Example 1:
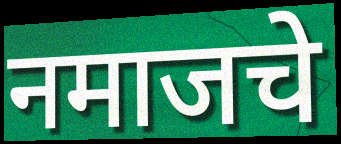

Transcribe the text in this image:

नमाजचे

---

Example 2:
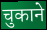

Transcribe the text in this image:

चुकाने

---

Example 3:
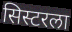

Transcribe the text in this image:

सिस्टरला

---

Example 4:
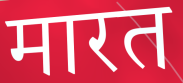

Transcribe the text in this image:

मारत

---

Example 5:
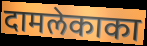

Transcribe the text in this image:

दामलेकाका